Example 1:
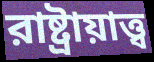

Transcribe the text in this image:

রাষ্ট্রায়াত্ত্ব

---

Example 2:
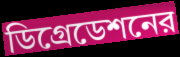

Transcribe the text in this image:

ডিগ্রেডেশনের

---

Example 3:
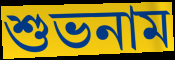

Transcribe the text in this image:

শুভনাম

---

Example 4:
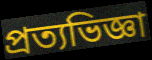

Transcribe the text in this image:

প্রত্যভিজ্ঞা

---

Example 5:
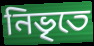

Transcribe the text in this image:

নিভৃতে